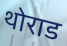
थोराड